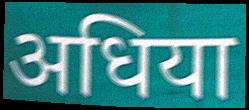
अधिया